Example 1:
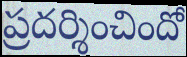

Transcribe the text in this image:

ప్రదర్శించిందో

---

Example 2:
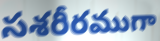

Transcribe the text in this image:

సశరీరముగా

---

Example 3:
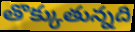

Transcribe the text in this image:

తొక్కుతున్నది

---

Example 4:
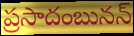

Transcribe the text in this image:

ప్రసాదంబునన్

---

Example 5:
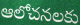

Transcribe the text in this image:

ఆలోచనలకు